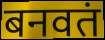
बनवतं